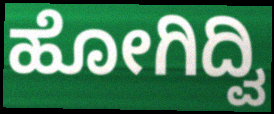
ಹೋಗಿದ್ವಿ